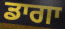
ਡਾਗਾ